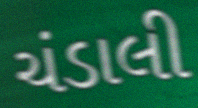
ચંડાલી